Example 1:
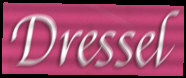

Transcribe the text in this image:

Dressel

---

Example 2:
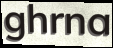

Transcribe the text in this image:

ghrna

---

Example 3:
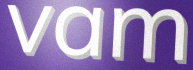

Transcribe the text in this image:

vam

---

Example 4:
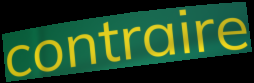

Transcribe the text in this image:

contraire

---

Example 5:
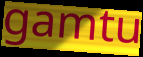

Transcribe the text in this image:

gamtu